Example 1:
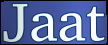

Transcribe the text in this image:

Jaat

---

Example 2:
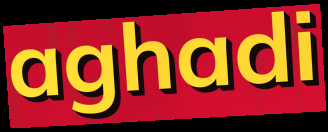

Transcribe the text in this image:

aghadi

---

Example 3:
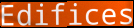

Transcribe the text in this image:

Edifices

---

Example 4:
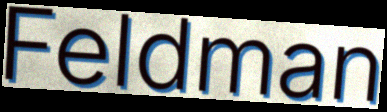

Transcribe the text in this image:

Feldman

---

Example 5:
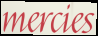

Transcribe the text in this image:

mercies